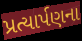
પ્રત્યાર્પણના